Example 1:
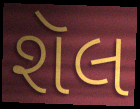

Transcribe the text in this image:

શૅલ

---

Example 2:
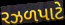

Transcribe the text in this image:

રઝળપાટે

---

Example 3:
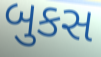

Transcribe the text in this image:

બુકસ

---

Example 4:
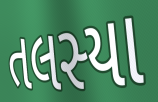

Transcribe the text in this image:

તલસ્યા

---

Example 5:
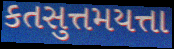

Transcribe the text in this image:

કતસુત્તમયત્તા